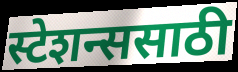
स्टेशन्ससाठी